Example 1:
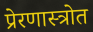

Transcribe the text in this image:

प्रेरणास्त्रोत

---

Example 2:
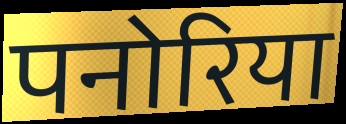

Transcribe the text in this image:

पनोरिया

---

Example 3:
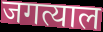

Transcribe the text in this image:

जगत्याल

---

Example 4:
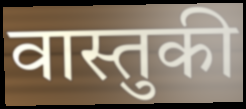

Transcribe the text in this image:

वास्तुकी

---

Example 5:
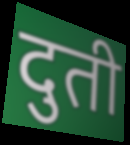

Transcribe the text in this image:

दुती